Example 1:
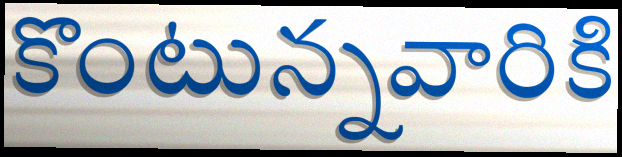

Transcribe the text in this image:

కొంటున్నవారికి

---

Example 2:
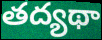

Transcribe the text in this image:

తద్యథా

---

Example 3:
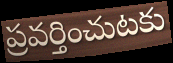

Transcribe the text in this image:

ప్రవర్తించుటకు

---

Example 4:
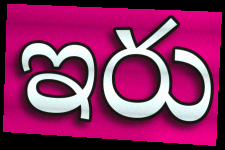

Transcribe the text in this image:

ఇరు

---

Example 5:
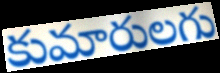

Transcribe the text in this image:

కుమారులగు